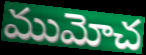
ముమోచ